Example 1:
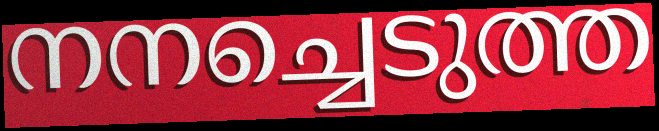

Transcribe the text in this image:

നനച്ചെടുത്ത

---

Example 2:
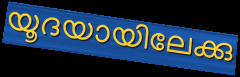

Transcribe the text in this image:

യൂദയായിലേക്കു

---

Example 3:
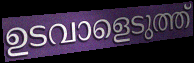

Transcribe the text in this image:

ഉടവാളെടുത്ത്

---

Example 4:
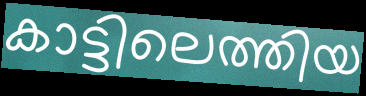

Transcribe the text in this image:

കാട്ടിലെത്തിയ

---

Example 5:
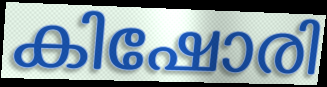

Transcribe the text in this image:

കിഷോരി